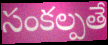
సంకల్పతే